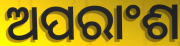
ଅପରାଂଶ